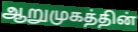
ஆறுமுகத்தின்